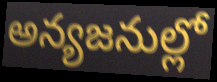
అన్యజనుల్లో